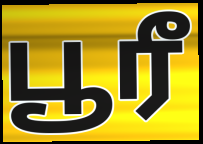
பூரீ